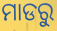
ମାଡରୁ